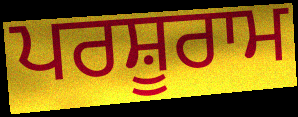
ਪਰਸ਼ੂਰਾਮ